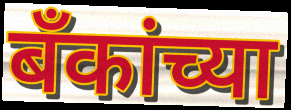
बॅंकांच्या